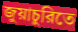
জুয়াচুরিতে